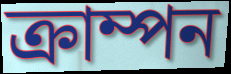
ক্রাম্পন